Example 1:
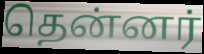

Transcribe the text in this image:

தென்னர்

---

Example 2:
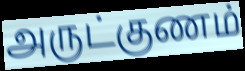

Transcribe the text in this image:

அருட்குணம்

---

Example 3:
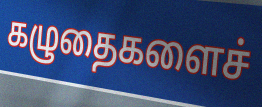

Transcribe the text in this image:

கழுதைகளைச்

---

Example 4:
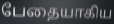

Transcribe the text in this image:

பேதையாகிய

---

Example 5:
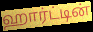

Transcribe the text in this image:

ஹார்ட்டின்